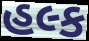
હલ્ક